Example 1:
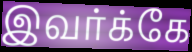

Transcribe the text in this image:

இவர்க்கே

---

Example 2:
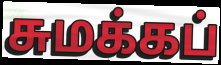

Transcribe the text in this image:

சுமக்கப்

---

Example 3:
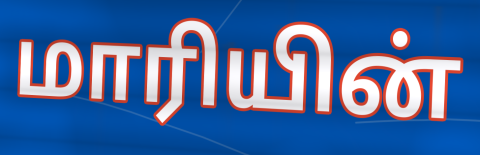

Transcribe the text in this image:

மாரியின்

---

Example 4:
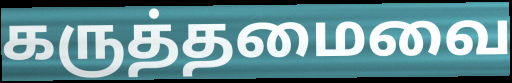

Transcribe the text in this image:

கருத்தமைவை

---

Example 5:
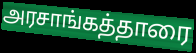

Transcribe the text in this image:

அரசாங்கத்தாரை